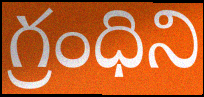
గ్రంధిని